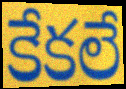
కేకలే